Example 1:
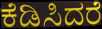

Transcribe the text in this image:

ಕೆಡಿಸಿದರೆ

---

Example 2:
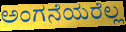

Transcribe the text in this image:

ಅಂಗನೆಯರೆಲ್ಲ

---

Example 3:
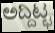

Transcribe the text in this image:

ಅದ್ದಿಟ್ಟ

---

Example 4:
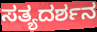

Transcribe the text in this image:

ಸತ್ಯದರ್ಶನ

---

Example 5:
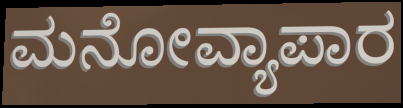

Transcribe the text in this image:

ಮನೋವ್ಯಾಪಾರ